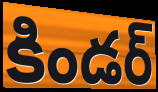
కిండర్